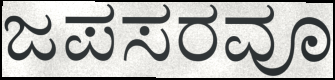
ಜಪಸರವೂ